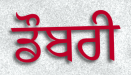
ਡੌਬਰੀ